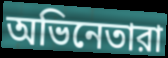
অভিনেতারা